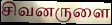
சிவனருளை